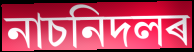
নাচনিদলৰ